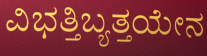
ವಿಭತ್ತಿಬ್ಯತ್ತಯೇನ